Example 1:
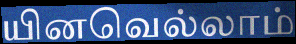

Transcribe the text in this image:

யினவெல்லாம்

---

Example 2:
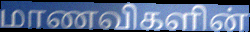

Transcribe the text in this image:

மாணவிகளின்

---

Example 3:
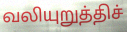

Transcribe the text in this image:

வலியுறுத்திச்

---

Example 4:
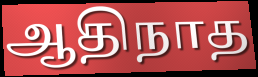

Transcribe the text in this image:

ஆதிநாத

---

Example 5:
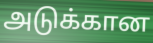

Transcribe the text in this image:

அடுக்கான